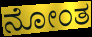
ನೋಂತ